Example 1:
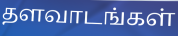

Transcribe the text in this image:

தளவாடங்கள்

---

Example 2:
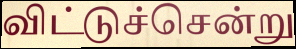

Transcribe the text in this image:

விட்டுச்சென்று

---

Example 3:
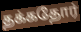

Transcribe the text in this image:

தக்கதோர்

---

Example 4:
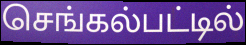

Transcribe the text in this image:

செங்கல்பட்டில்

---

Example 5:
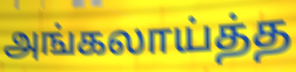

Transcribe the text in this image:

அங்கலாய்த்த